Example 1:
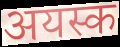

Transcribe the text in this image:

अयस्क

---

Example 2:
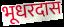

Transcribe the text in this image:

भूधरदास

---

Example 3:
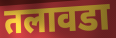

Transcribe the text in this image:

तलावडा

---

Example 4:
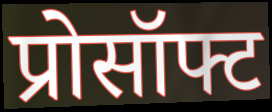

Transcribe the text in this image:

प्रोसॉफ्ट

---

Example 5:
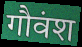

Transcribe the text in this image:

गौवंश